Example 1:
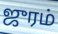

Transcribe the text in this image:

ஜுரம்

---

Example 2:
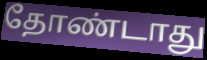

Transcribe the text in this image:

தோண்டாது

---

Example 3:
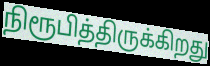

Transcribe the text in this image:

நிரூபித்திருக்கிறது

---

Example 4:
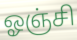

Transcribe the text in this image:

ஓஞ்சி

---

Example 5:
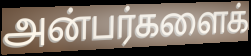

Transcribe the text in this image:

அன்பர்களைக்